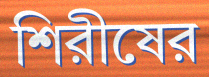
শিরীষের